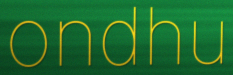
ondhu